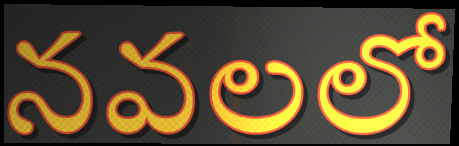
నవలలో